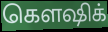
கௌஷிக்